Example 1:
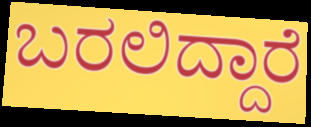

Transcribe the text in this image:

ಬರಲಿದ್ದಾರೆ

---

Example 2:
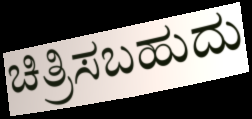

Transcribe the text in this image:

ಚಿತ್ರಿಸಬಹುದು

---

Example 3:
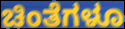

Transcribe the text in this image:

ಚಿಂತೆಗಳೂ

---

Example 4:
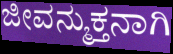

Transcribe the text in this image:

ಜೀವನ್ಮುಕ್ತನಾಗಿ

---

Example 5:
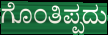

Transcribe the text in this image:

ಗೊಂತಿಪ್ಪದು